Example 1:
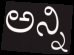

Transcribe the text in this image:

ಅನ್ನಿ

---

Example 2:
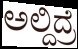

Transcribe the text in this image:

ಅಲ್ದಿದ್ರೆ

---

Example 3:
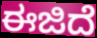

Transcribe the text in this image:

ಈಜಿದೆ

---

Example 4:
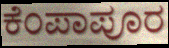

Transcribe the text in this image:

ಕೆಂಪಾಪೂರ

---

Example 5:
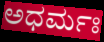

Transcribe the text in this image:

ಅಧರ್ಮಃ